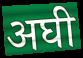
अघी